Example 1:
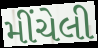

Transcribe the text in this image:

મીંચેલી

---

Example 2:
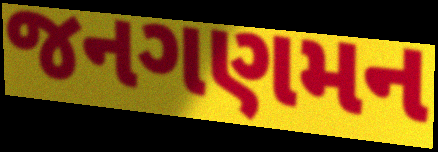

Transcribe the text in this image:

જનગણમન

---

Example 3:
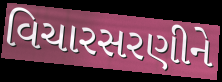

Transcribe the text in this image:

વિચારસરણીને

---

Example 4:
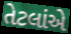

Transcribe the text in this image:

તેટલાંએ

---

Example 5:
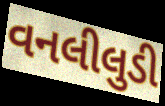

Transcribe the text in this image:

વનલીલુડી